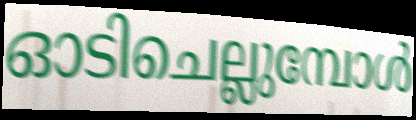
ഓടിചെല്ലുമ്പോൾ